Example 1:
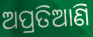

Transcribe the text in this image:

ଅପ୍ରତିଆଣି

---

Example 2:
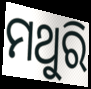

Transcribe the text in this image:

ମଥୁରି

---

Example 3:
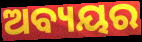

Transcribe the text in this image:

ଅବ୍ୟୟର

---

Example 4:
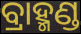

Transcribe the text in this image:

ବ୍ରାହ୍ମଣ୍ଡ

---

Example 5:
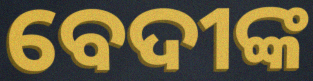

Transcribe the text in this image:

ବେଦୀଙ୍କ